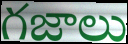
గజాలు